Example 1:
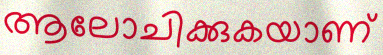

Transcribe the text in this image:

ആലോചിക്കുകയാണ്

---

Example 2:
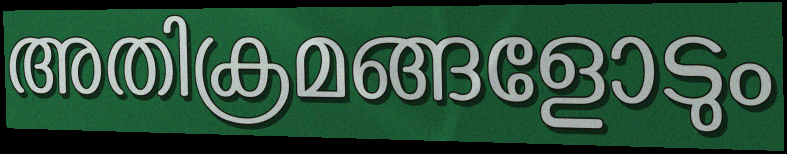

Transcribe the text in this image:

അതിക്രമങ്ങളോടും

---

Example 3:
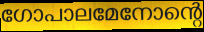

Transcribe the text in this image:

ഗോപാലമേനോന്റെ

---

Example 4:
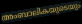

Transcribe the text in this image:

അംബാലികയുടെയും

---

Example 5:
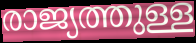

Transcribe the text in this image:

രാജ്യത്തുള്ള